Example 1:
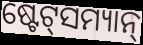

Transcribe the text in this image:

ଷ୍ଟେଟ୍‌ସମ୍ୟାନ୍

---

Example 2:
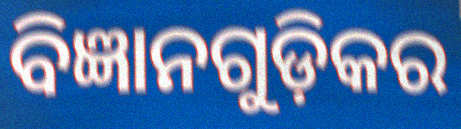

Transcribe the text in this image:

ବିଜ୍ଞାନଗୁଡ଼ିକର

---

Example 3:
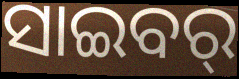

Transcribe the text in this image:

ସାଇବର୍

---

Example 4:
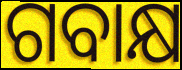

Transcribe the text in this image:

ଗବାକ୍ଷ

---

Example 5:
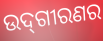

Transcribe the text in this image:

ଉଦ୍‌ଗୀରଣର